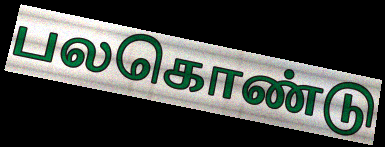
பலகொண்டு